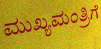
ಮುಖ್ಯಮಂತ್ರಿಗೆ